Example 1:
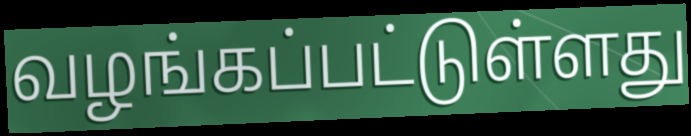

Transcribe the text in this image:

வழங்கப்பட்டுள்ளது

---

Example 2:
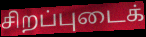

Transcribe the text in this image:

சிறப்புடைக்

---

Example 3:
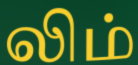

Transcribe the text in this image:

லிம்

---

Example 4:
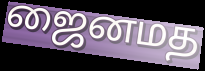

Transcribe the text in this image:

ஜைனமத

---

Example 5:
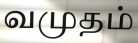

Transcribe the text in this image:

வமுதம்